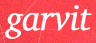
garvit